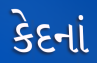
કેદનાં